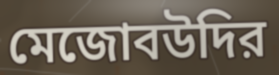
মেজোবউদির